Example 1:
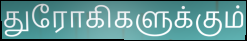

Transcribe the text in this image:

துரோகிகளுக்கும்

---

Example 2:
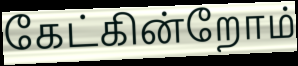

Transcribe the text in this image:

கேட்கின்றோம்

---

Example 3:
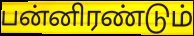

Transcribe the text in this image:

பன்னிரண்டும்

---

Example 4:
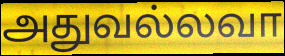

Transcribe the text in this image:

அதுவல்லவா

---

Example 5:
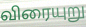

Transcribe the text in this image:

விரையுறு